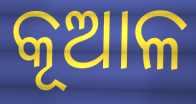
କୂଆଳ